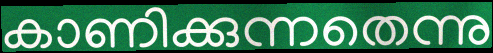
കാണിക്കുന്നതെന്നു